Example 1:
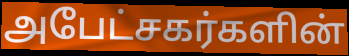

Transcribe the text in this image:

அபேட்சகர்களின்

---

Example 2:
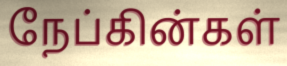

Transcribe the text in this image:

நேப்கின்கள்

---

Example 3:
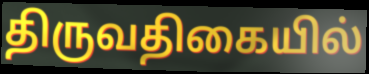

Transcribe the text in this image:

திருவதிகையில்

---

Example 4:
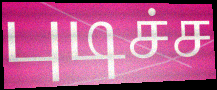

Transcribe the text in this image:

புடிச்ச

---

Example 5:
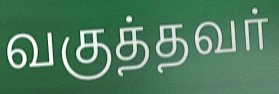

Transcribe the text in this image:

வகுத்தவர்